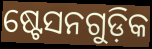
ଷ୍ଟେସନଗୁଡ଼ିକ